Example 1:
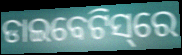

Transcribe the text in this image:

ଡାଇବେଟିସ୍‌ରେ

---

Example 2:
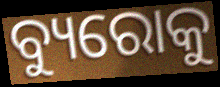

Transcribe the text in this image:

ବ୍ୟୁରୋକୁ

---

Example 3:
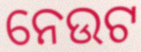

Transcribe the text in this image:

ନେଉଟ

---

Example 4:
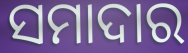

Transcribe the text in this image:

ସମାଦାର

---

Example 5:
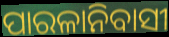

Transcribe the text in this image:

ପାରଳାନିବାସୀ